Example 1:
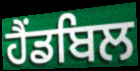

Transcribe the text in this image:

ਹੈਂਡਬਿਲ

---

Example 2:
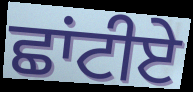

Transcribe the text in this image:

ਛਾਂਟੀਏ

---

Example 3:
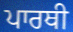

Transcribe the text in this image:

ਪਾਰਥੀ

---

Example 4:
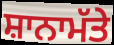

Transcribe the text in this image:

ਸ਼ਾਨਾਮੱਤੇ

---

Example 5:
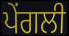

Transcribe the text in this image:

ਪੇਂਗਲੀ